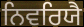
ਨਿਵਰਿਯੈ